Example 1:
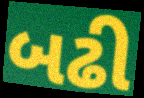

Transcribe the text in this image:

બઢી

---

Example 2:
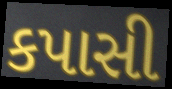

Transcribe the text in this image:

કપાસી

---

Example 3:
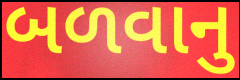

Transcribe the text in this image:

બળવાનુ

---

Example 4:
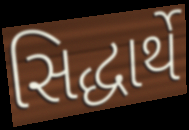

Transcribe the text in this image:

સિદ્ધાર્થે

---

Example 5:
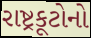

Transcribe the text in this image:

રાષ્ટ્રકૂટોનો